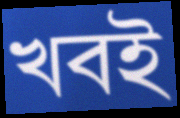
খবই